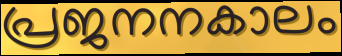
പ്രജനനകാലം